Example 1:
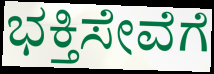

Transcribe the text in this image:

ಭಕ್ತಿಸೇವೆಗೆ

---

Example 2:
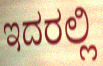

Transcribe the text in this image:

ಇದರಲ್ಲಿ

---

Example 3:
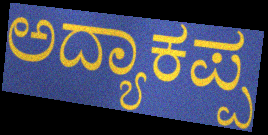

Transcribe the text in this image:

ಅದ್ಯಾಕಪ್ಪ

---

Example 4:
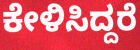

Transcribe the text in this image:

ಕೇಳಿಸಿದ್ದರೆ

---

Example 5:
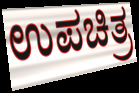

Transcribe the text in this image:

ಉಪಚಿತ್ರ